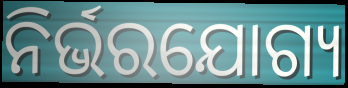
ନିର୍ଭରଯୋଗ୍ୟ